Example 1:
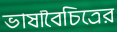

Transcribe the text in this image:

ভাষাবৈচিত্রের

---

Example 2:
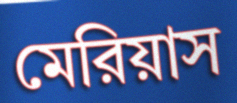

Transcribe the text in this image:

মেরিয়াস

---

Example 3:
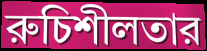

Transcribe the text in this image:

রুচিশীলতার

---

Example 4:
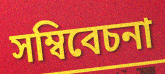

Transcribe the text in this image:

সম্বিবেচনা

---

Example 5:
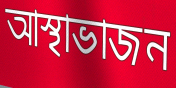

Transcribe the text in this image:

আস্থাভাজন